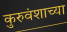
कुरुवंशाच्या